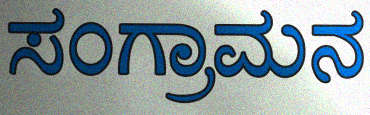
ಸಂಗ್ರಾಮನ